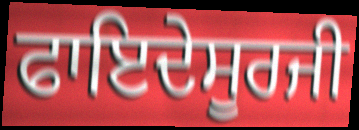
ਫਾਇਦੇਸੂਰਜੀ